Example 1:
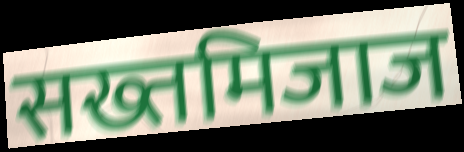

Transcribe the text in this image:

सख्तमिजाज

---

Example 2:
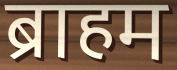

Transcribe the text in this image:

ब्राहम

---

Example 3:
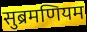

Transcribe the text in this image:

सुब्रमणियम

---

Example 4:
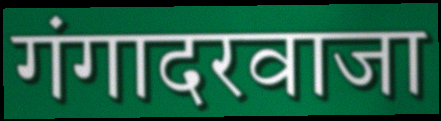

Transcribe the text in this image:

गंगादरवाजा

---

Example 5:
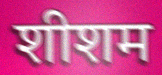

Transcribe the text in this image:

शीशम